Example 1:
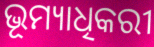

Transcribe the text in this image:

ଭୂମ୍ୟାଧିକରୀ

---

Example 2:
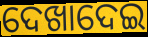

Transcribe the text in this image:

ଦେଖାଦେଇ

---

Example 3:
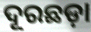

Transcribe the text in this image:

ଦୂରଛଡ଼ା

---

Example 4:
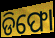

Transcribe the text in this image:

ଡିଫୋ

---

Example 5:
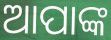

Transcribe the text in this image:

ଆପାଙ୍କ